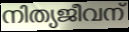
നിത്യജീവന്